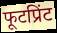
फूटप्रिंट